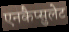
एनकैप्सुलेट